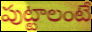
పుట్టాలంటే